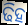
ଢିହ